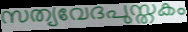
സത്യവേദപുസ്തകം